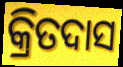
କ୍ରିତଦାସ